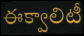
ఈక్వాలిటీ